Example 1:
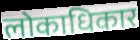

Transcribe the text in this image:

लोकाधिकार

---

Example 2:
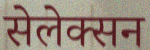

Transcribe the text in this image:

सेलेक्सन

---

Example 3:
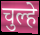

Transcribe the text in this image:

चुल्हे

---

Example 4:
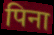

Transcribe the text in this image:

पिना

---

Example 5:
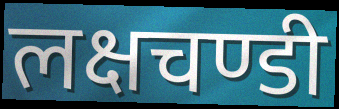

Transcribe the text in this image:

लक्षचण्डी